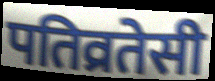
पतिव्रतेसी